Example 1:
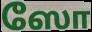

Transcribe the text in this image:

ஸோ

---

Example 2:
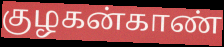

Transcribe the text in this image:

குழகன்காண்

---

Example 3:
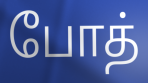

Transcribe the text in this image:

போத்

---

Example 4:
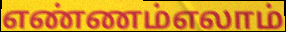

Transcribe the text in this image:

எண்ணம்எலாம்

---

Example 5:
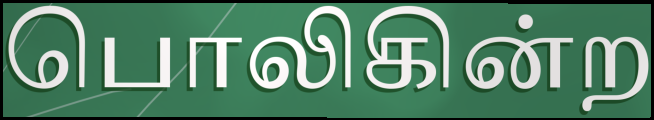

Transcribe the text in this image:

பொலிகின்ற